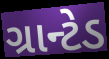
ગ્રાન્ટેડ